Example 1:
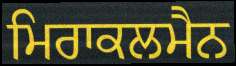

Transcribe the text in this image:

ਮਿਰਾਕਲਮੈਨ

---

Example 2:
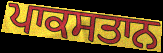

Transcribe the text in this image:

ਪਾਕਸਤਾਨ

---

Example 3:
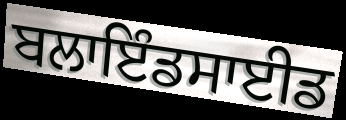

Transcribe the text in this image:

ਬਲਾਇੰਡਸਾਈਡ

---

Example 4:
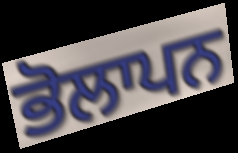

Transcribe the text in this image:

ਭੋਲਾਪਨ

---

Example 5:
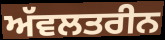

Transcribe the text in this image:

ਅੱਵਲਤਰੀਨ